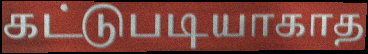
கட்டுபடியாகாத